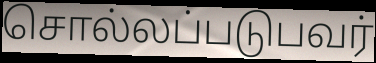
சொல்லப்படுபவர்